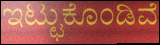
ಇಟ್ಟುಕೊಂಡಿವೆ